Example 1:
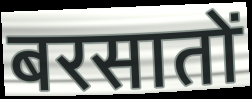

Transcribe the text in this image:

बरसातों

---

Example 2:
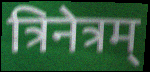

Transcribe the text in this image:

त्रिनेत्रम्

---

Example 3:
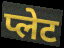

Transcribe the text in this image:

प्लेट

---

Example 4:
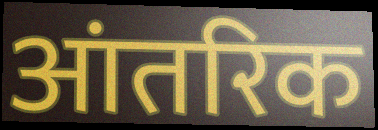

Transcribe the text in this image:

आंतरिक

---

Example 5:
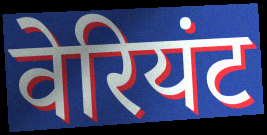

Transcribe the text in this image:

वेरियंट